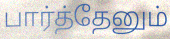
பார்த்தேனும்